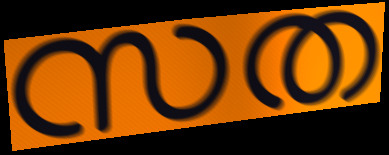
സത